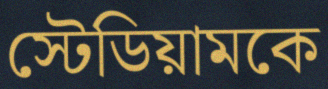
স্টেডিয়ামকে